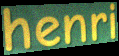
henri